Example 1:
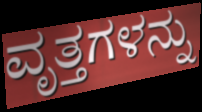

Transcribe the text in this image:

ವೃತ್ತಗಳನ್ನು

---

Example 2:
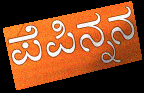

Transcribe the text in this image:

ಪೆಪಿನ್ನನ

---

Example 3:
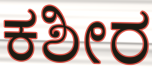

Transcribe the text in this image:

ಕಶೀರ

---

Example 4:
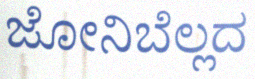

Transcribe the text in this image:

ಜೋನಿಬೆಲ್ಲದ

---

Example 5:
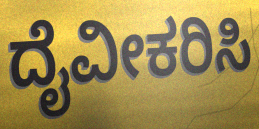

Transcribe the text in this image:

ದೈವೀಕರಿಸಿ